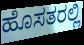
ಹೊಸತರಲ್ಲಿ